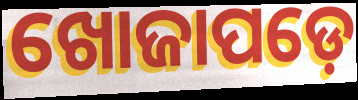
ଖୋଜାପଡ଼େ